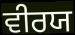
ਵੀਰਯ